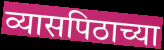
व्यासपिठाच्या